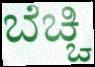
ಬೆಚ್ಚಿ